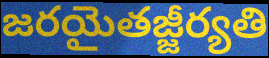
జరయైతజ్జీర్యతి